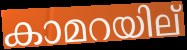
കാമറയില്